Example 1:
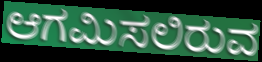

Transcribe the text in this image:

ಆಗಮಿಸಲಿರುವ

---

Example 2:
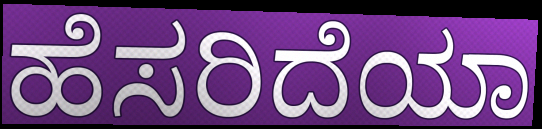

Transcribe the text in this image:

ಹೆಸರಿದೆಯಾ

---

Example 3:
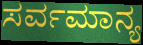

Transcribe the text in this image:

ಸರ್ವಮಾನ್ಯ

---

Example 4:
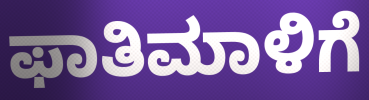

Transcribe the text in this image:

ಫಾತಿಮಾಳಿಗೆ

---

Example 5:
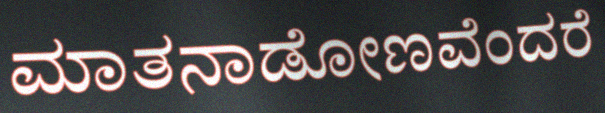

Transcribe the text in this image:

ಮಾತನಾಡೋಣವೆಂದರೆ